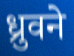
ध्रुवने